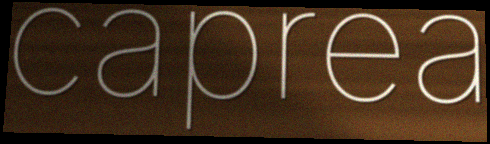
caprea